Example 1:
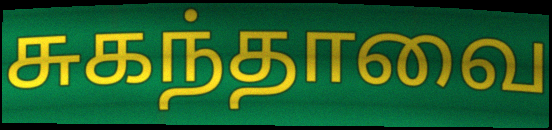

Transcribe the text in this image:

சுகந்தாவை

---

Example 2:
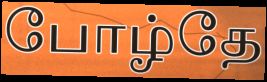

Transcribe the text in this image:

போழ்தே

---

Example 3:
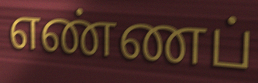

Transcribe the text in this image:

எண்ணப்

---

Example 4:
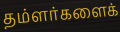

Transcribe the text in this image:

தம்ளர்களைக்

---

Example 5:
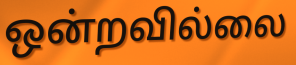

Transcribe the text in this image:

ஒன்றவில்லை